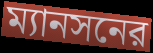
ম্যানসনের